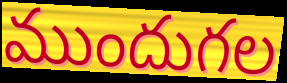
ముందుగల